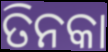
ତିନକା